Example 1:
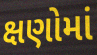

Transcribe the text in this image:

ક્ષણોમાં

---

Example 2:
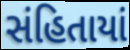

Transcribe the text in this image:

સંહિતાયાં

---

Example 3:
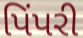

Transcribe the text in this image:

પિંપરી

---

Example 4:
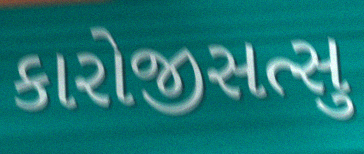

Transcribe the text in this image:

કારોજીસત્સુ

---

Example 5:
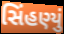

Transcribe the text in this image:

સિંહણ્યું